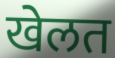
खेलत